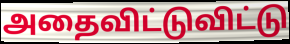
அதைவிட்டுவிட்டு